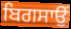
ਬਿਗਸਾਉਂ